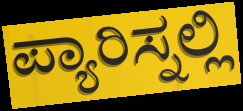
ಪ್ಯಾರಿಸ್ನಲ್ಲಿ